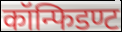
कॉन्फिडण्ट